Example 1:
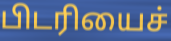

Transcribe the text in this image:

பிடரியைச்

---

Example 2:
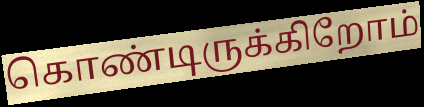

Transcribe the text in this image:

கொண்டிருக்கிறோம்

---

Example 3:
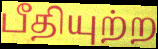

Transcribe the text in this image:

பீதியுற்ற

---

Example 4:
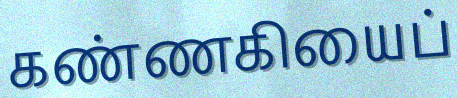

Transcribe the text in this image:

கண்ணகியைப்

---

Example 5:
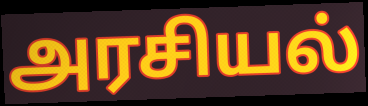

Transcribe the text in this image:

அரசியல்